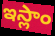
ఇస్లాం